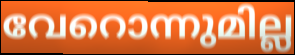
വേറൊന്നുമില്ല